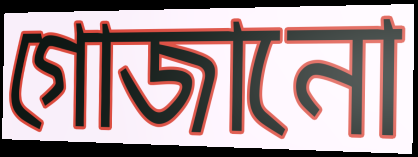
গোজানো